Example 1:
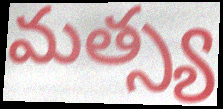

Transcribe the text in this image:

మత్స్య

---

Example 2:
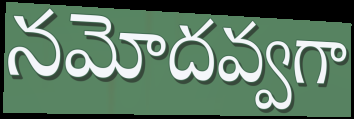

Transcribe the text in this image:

నమోదవ్వగా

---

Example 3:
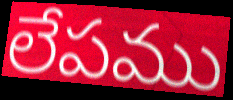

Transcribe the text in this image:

లేపము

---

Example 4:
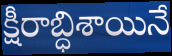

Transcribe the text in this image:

క్షీరాబ్ధిశాయినే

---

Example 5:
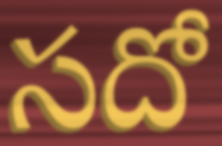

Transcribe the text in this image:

సదో